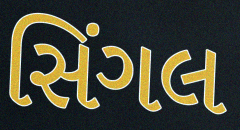
સિંગલ